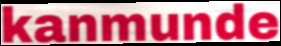
kanmunde